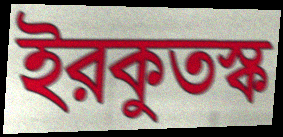
ইরকুতস্ক